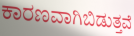
ಕಾರಣವಾಗಿಬಿಡುತ್ತವೆ